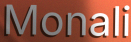
Monali